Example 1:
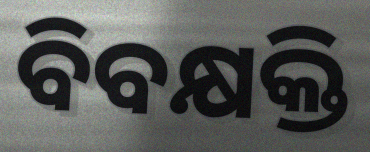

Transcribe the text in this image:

ବିବକ୍ଷକ୍ତି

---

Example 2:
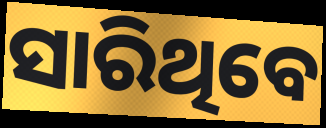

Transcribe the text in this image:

ସାରିଥିବେ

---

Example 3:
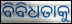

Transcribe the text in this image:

ବିବିଧତାକୁ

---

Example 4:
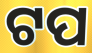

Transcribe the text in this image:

ଟପ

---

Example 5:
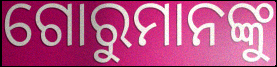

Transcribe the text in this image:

ଗୋରୁମାନଙ୍କୁ